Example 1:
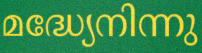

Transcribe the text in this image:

മദ്ധ്യേനിന്നു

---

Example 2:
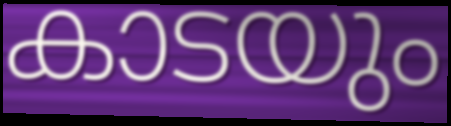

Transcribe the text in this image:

കാടയും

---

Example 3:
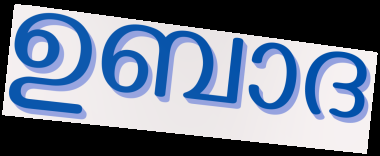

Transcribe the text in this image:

ഉബാദ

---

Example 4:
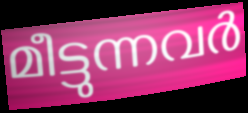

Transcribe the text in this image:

മീട്ടുന്നവർ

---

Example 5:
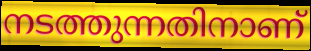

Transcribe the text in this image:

നടത്തുന്നതിനാണ്